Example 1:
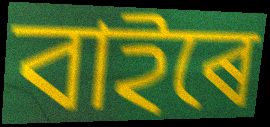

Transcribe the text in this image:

বাইৰে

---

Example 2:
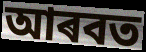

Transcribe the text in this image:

আৰবত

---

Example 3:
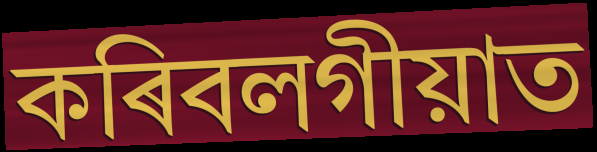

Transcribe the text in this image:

কৰিবলগীয়াত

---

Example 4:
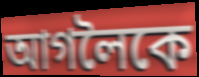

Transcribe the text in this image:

আগলৈকে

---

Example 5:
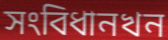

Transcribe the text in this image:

সংবিধানখন